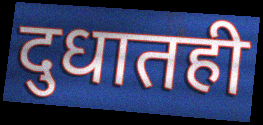
दुधातही